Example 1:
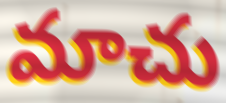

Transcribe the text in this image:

మాచు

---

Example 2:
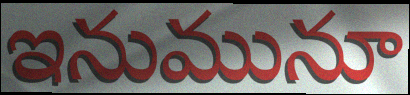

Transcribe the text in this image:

ఇనుమునూ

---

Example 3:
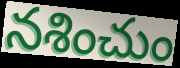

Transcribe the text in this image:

నశించుం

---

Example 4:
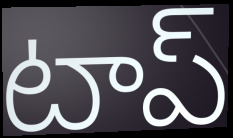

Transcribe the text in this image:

టాప్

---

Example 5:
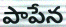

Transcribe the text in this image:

పాపేన